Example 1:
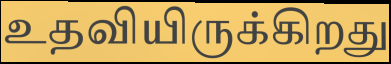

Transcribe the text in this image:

உதவியிருக்கிறது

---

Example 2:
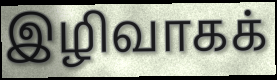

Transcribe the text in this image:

இழிவாகக்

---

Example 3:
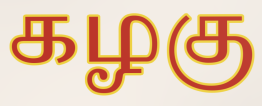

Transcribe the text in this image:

கழகு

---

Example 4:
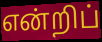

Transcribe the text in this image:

என்றிப்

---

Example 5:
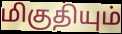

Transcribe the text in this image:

மிகுதியும்